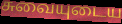
சுவையுடைய